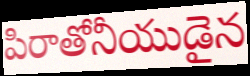
పిరాతోనీయుడైన